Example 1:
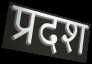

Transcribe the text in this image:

प्रदश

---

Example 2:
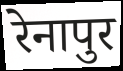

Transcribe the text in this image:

रेनापुर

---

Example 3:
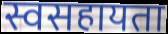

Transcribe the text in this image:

स्‍वसहायता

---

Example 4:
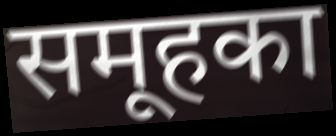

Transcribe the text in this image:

समूहका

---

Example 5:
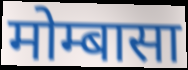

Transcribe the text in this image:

मोम्बासा